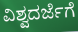
ವಿಶ್ವದರ್ಜೆಗೆ